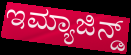
ಇಮ್ಯಾಜಿನ್ಡ್